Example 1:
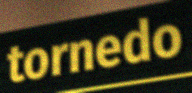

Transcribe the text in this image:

tornedo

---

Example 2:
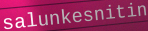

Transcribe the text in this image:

salunkesnitin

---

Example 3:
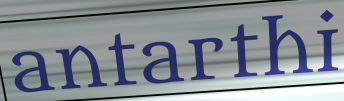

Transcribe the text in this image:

antarthi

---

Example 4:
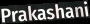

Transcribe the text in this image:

Prakashani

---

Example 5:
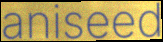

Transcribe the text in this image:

aniseed